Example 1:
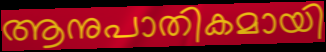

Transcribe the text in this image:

ആനുപാതികമായി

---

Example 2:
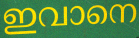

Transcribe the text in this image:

ഇവാനെ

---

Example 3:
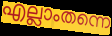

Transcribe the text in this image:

എല്ലാംതന്നെ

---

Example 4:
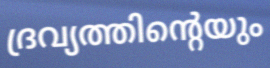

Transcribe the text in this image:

ദ്രവ്യത്തിന്റെയും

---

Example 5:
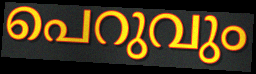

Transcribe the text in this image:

പെറുവും